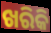
ଖରିକି